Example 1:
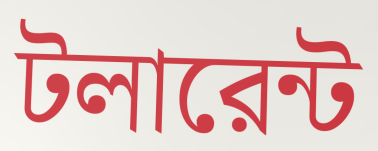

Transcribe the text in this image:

টলারেন্ট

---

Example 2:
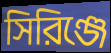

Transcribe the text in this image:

সিরিঞ্জে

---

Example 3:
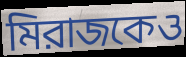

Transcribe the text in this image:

মিরাজকেও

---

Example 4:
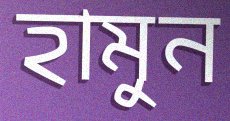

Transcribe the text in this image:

হামুন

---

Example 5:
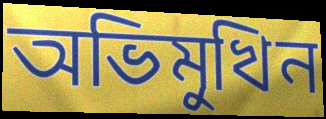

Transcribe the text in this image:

অভিমুখিন